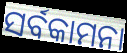
ସର୍ବକାମନା